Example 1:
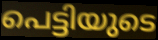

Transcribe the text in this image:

പെട്ടിയുടെ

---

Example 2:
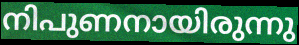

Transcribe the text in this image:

നിപുണനായിരുന്നു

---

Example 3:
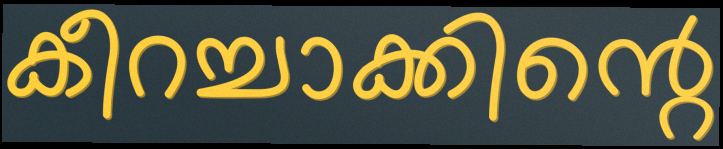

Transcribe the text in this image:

കീറച്ചാക്കിന്റെ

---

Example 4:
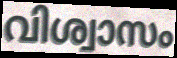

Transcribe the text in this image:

വിശ്വാസം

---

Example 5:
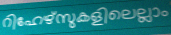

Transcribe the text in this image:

റിഹേഴ്സുകളിലെല്ലാം